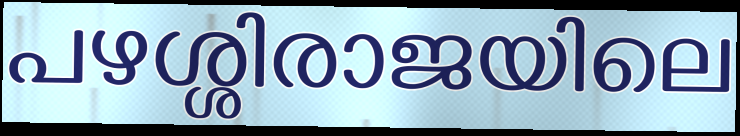
പഴശ്ശിരാജയിലെ